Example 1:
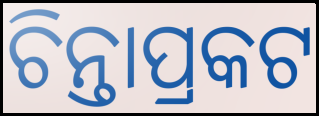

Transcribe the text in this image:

ଚିନ୍ତାପ୍ରକଟ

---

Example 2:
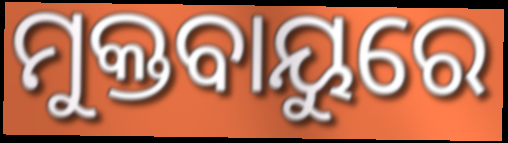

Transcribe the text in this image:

ମୁକ୍ତବାୟୁରେ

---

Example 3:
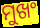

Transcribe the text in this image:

ମୁଖଂ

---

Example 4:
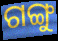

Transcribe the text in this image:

ଗଙ୍ଗୁ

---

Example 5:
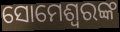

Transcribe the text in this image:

ସୋମେଶ୍ୱରଙ୍କ